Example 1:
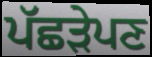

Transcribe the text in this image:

ਪੱਛੜੇਪਣ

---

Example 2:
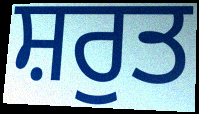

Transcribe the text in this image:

ਸ਼ਰੁਤ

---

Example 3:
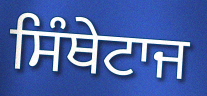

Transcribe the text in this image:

ਸਿੰਥੇਟਾਜ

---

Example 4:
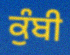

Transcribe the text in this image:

ਕੁੰਬੀ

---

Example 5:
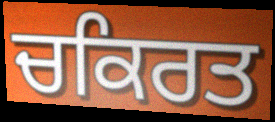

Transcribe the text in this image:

ਚਕਿਰਤ